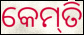
କେମ୍‍ତି